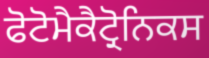
ਫੋਟੋਮੈਕੈਟ੍ਰੋਨਿਕਸ